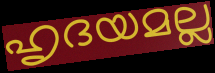
ഹൃദയമല്ല